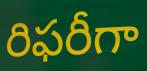
రిఫరీగా